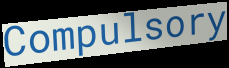
Compulsory